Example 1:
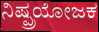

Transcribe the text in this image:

ನಿಷ್ಪ್ರಯೋಜಕ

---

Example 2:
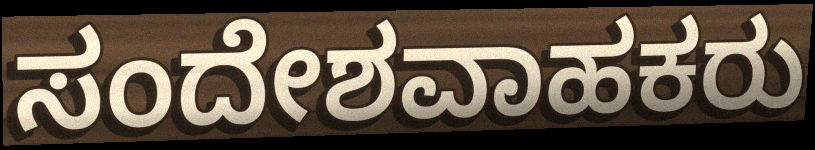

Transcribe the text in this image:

ಸಂದೇಶವಾಹಕರು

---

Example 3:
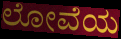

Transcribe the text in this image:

ಲೋವೆಯ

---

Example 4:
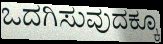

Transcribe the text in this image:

ಒದಗಿಸುವುದಕ್ಕೂ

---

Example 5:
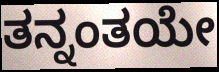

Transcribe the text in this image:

ತನ್ನಂತಯೇ